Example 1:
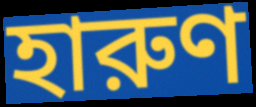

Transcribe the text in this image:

হারুণ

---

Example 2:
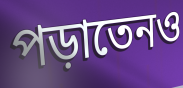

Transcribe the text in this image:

পড়াতেনও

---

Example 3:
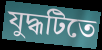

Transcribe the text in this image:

যুদ্ধটিতে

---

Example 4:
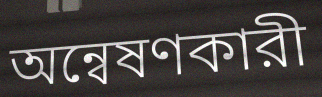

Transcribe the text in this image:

অন্বেষণকারী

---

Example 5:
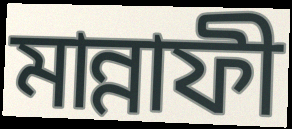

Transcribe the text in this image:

মান্নাফী